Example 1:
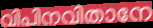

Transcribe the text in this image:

വിപിനവിതാനേ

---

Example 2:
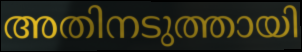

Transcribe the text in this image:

അതിനടുത്തായി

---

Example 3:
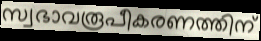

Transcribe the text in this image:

സ്വഭാവരൂപീകരണത്തിന്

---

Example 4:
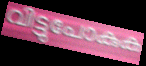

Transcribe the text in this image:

വിട്ടുപോകുക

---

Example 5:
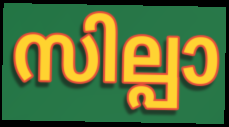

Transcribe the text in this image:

സില്പാ